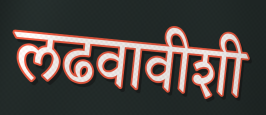
लढवावीशी